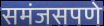
समंजसपणे